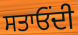
ਸਤਾਓਂਦੀ